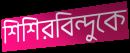
শিশিরবিন্দুকে